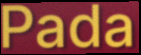
Pada